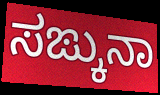
ಸಙ್ಕುನಾ